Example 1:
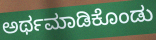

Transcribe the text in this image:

ಅರ್ಥಮಾಡಿಕೊಂಡು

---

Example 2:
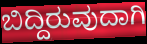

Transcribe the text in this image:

ಬಿದ್ದಿರುವುದಾಗಿ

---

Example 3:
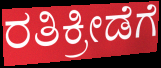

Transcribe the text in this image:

ರತಿಕ್ರೀಡೆಗೆ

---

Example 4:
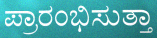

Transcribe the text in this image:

ಪ್ರಾರಂಭಿಸುತ್ತಾ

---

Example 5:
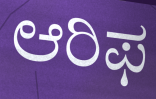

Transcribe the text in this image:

ಆರಿಫ